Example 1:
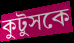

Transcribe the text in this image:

কুটুসকে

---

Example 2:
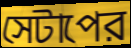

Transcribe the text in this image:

সেটাপের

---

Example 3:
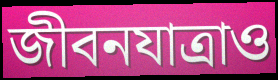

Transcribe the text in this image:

জীবনযাত্রাও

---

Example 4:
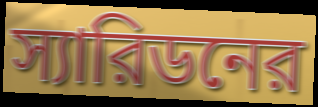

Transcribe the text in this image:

স্যারিডনের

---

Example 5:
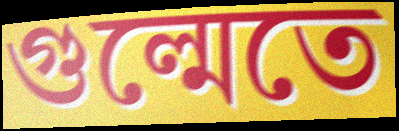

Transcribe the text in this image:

গুল্মেতে